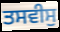
ਤਸਵੀਸੁ